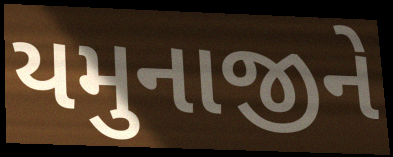
યમુનાજીને